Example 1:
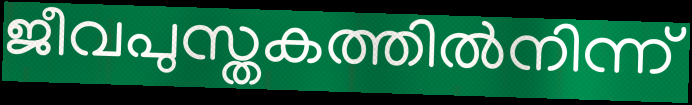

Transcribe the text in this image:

ജീവപുസ്തകത്തിൽനിന്ന്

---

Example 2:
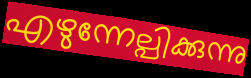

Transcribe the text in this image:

എഴുന്നേല്പിക്കുന്നു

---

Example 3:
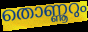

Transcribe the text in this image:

തൊണ്ണൂറും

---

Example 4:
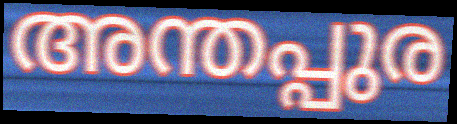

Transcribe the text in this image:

അന്തപ്പുര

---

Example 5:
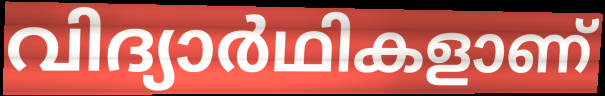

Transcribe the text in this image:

വിദ്യാർഥികളാണ്